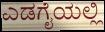
ಎಡಗೈಯಲ್ಲಿ